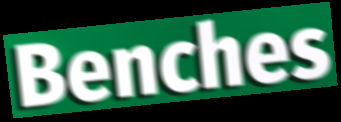
Benches